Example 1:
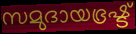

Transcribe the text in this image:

സമുദായഭ്രഷ്ട്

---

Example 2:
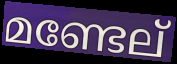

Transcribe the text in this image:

മണ്ടേല്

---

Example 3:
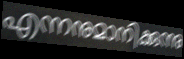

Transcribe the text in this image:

എന്നനുമാനിക്കുന്നു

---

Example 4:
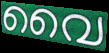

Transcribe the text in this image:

വൈ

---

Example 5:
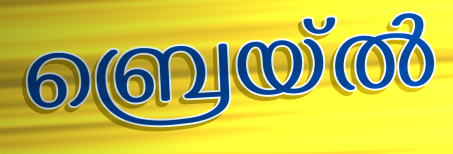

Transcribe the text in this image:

ബ്രെയ്ൽ